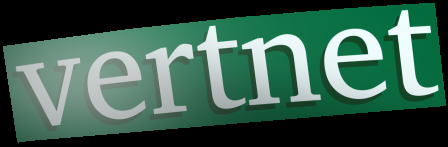
vertnet